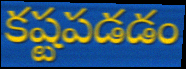
కష్టపడడం